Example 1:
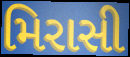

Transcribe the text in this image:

મિરાસી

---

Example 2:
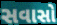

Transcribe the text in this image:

સવાસો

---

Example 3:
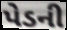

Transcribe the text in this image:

પેડની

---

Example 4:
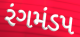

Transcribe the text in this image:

રંગમંડપ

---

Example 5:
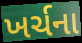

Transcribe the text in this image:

ખર્ચના